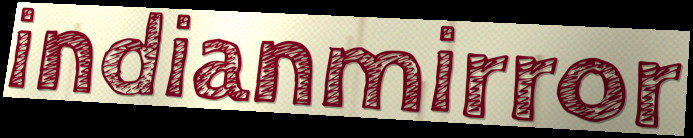
indianmirror